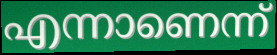
എന്നാണെന്ന്